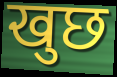
खुछ